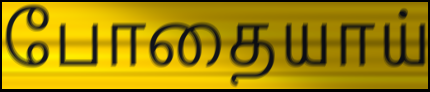
போதையாய்